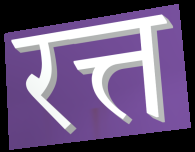
रत्त